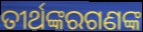
ତୀର୍ଥଙ୍କରଗଣଙ୍କ